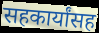
सहकार्यांसह